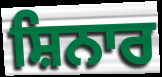
ਸ਼ਿਨਾਰ